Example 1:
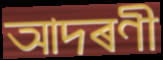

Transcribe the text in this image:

আদৰণী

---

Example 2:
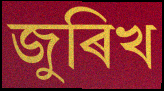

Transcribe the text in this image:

জুৰিখ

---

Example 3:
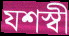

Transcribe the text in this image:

যশস্বী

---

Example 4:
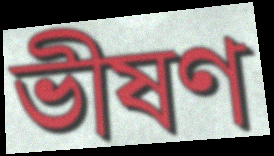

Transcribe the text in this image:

ভীষণ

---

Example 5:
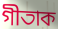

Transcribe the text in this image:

গীতাক